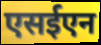
एसईएन